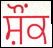
ਸ਼ੌੰਕ